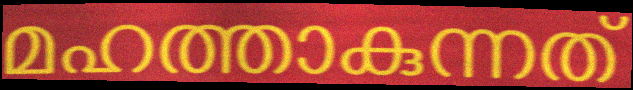
മഹത്താകുന്നത്